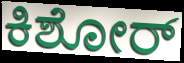
ಕಿಶೋರ್